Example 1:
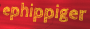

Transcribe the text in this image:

ephippiger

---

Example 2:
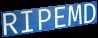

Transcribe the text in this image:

RIPEMD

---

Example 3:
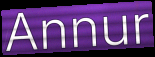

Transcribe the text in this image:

Annur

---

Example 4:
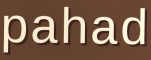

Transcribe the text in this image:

pahad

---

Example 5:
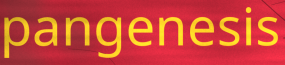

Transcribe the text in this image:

pangenesis